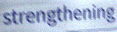
strengthening